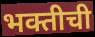
भक्तीची